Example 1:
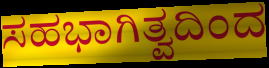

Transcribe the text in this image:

ಸಹಭಾಗಿತ್ವದಿಂದ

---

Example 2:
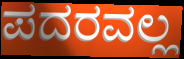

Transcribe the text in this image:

ಪದರವಲ್ಲ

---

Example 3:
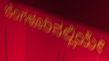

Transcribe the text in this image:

ಬೆಂಗಳೂರಿನಲ್ಲಿಯೇ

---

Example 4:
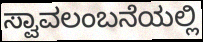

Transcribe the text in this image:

ಸ್ವಾವಲಂಬನೆಯಲ್ಲಿ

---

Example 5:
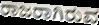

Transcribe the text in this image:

ರಾಜರಾಗಿರುವ